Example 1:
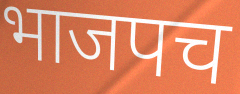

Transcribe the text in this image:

भाजपच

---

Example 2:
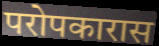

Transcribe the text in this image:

परोपकारास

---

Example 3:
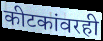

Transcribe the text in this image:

कीटकांवरही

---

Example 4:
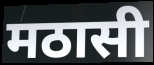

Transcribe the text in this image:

मठासी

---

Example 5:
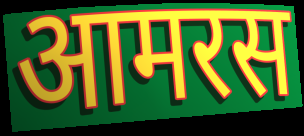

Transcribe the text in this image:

आमरस